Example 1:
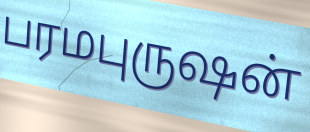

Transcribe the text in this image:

பரமபுருஷன்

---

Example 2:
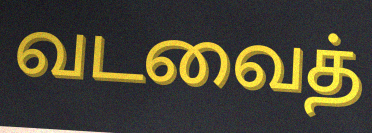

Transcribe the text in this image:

வடவைத்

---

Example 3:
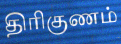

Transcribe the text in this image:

திரிகுணம்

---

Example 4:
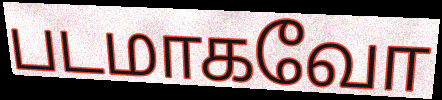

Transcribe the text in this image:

படமாகவோ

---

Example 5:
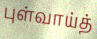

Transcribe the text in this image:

புள்வாய்த்